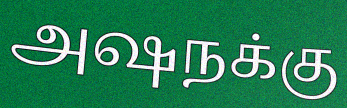
அஷநக்கு